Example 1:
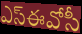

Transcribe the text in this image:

ఎస్ఈవోసీ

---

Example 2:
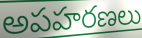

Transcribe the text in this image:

అపహరణలు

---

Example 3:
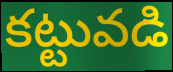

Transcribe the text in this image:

కట్టువడి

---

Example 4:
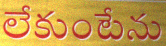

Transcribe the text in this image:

లేకుంటేను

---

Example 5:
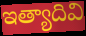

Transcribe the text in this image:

ఇత్యాదివి